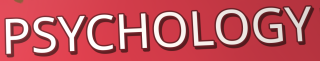
PSYCHOLOGY